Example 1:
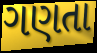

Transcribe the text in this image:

ગણતા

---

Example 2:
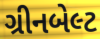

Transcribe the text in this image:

ગ્રીનબેલ્ટ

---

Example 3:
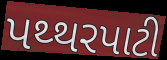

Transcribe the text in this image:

પથ્થરપાટી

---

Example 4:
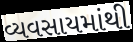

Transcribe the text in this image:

વ્યવસાયમાંથી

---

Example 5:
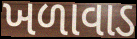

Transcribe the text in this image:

ખળાવાડ